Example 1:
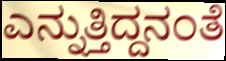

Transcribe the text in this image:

ಎನ್ನುತ್ತಿದ್ದನಂತೆ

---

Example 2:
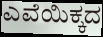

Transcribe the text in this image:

ಎವೆಯಿಕ್ಕದ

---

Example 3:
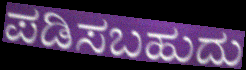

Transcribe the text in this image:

ಪಡಿಸಬಹುದು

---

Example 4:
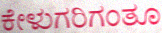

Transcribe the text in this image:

ಕೇಳುಗರಿಗಂತೂ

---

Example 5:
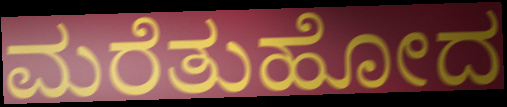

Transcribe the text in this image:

ಮರೆತುಹೋದ